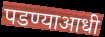
पडण्याआधी